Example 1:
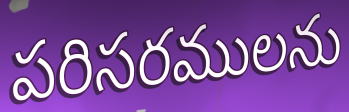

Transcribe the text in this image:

పరిసరములను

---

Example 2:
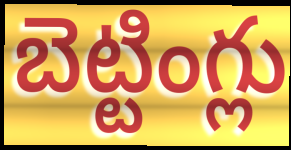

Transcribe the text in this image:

బెట్టింగ్లు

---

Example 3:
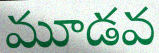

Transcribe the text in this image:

మూడవ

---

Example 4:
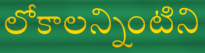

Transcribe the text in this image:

లోకాలన్నింటిని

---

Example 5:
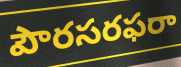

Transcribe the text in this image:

పౌరసరఫరా